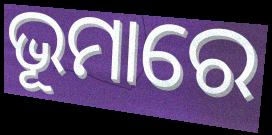
ଭୂମାରେ